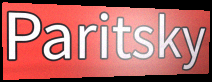
Paritsky